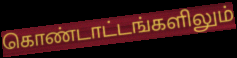
கொண்டாட்டங்களிலும்